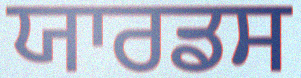
ਯਾਰਡਸ